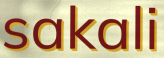
sakali